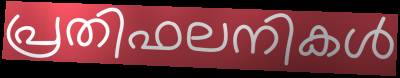
പ്രതിഫലനികൾ